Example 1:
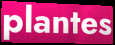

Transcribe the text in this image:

plantes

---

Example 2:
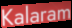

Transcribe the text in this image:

Kalaram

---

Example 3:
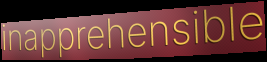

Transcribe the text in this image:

inapprehensible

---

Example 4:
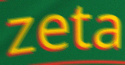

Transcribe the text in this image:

zeta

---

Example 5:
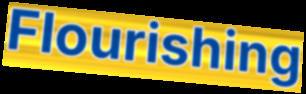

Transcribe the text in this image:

Flourishing